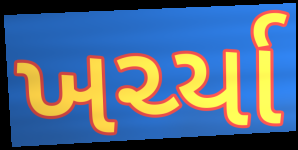
ખર્ચ્યા